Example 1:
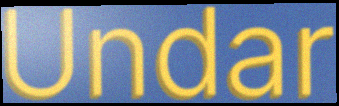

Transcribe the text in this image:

Undar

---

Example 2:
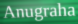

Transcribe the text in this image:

Anugraha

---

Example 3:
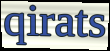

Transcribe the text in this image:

qirats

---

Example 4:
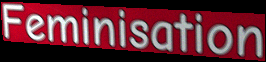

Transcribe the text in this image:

Feminisation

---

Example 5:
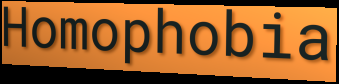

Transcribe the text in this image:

Homophobia